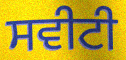
ਸਵੀਟੀ